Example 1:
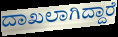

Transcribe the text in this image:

ದಾಖಲಾಗಿದ್ದಾರೆ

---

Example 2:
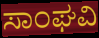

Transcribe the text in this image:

ಸಾಂಘವಿ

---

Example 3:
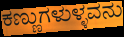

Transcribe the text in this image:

ಕಣ್ಣುಗಳುಳ್ಳವನು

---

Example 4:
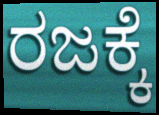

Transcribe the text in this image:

ರಜಕ್ಕೆ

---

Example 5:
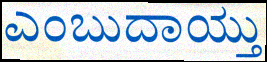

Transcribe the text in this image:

ಎಂಬುದಾಯ್ತು